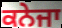
ਕਨੇਜਾ